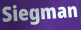
Siegman